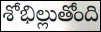
శోభిల్లుతోంది